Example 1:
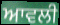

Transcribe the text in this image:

ਆਵਲੀ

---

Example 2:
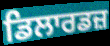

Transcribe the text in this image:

ਡਿਲਾਰਡਜ਼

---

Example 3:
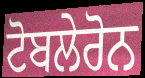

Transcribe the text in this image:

ਟੋਬਲੇਰੋਨ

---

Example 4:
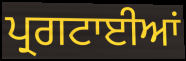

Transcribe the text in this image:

ਪ੍ਰਗਟਾਈਆਂ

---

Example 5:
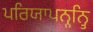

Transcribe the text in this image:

ਪਰਿਯਾਪਨ੍ਨਨ੍ਤਿ